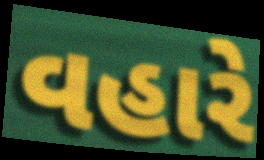
વહારે